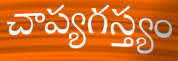
చాప్యగస్త్యం